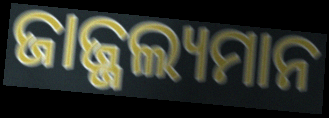
ଜାଜ୍ଜଲ୍ୟମାନ